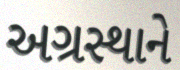
અગ્રસ્થાને